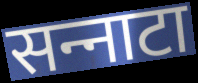
सन्‍नाटा